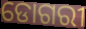
ଡୋଗରୀ